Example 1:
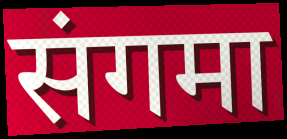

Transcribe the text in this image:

संगमा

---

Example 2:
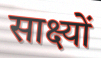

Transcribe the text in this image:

साक्ष्यों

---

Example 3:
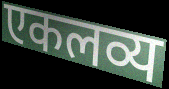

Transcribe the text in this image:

एकलव्य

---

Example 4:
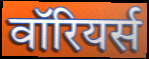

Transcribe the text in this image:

वॉरियर्स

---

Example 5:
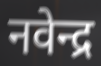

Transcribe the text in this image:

नवेन्द्र